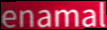
enamal